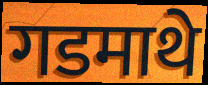
गडमाथे